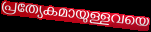
പ്രത്യേകമായുള്ളവയെ